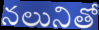
నలునితో